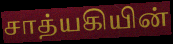
சாத்யகியின்